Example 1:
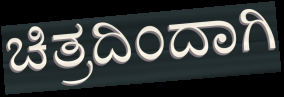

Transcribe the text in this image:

ಚಿತ್ರದಿಂದಾಗಿ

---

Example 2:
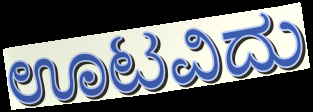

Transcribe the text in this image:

ಊಟವಿದು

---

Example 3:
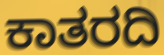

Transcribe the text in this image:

ಕಾತರದಿ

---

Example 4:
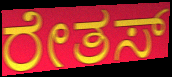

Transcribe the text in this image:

ರೇತಸ್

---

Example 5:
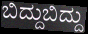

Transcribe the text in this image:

ಬಿದ್ದುಬಿದ್ದು